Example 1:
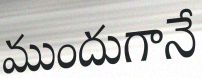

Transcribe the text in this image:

ముందుగానే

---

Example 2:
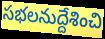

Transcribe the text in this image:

సభలనుద్దేశించి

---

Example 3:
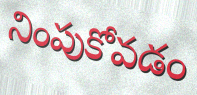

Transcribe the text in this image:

నింపుకోవడం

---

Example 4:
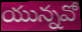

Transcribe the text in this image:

యున్నవో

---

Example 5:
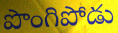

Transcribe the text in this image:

పొంగిపోడు